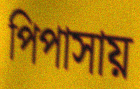
পিপাসায়